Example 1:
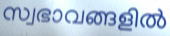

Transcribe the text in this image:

സ്വഭാവങ്ങളിൽ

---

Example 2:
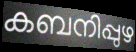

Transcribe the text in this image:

കബനിപ്പുഴ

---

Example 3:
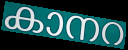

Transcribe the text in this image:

കാനറ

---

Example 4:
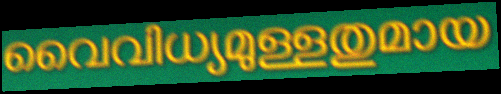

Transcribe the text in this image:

വൈവിധ്യമുള്ളതുമായ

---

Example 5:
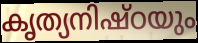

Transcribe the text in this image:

കൃത്യനിഷ്ഠയും